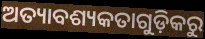
ଅତ୍ୟାବଶ୍ୟକତାଗୁଡ଼ିକରୁ